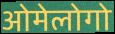
ओमेलोगो